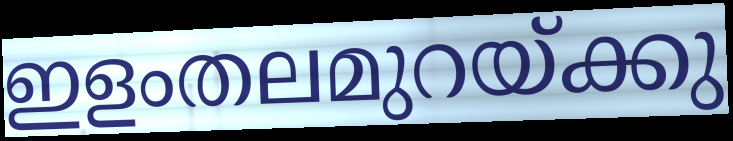
ഇളംതലമുറയ്ക്കു